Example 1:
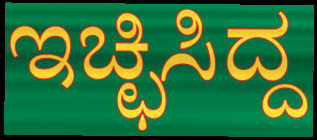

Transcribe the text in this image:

ಇಚ್ಛಿಸಿದ್ದ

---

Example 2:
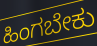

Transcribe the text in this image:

ಹಿಂಗಬೇಕು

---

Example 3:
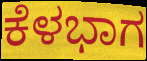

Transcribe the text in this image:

ಕೆಳಭಾಗ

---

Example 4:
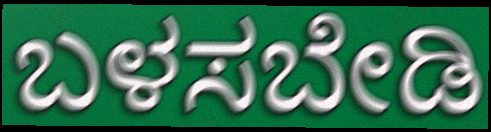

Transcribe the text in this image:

ಬಳಸಬೇಡಿ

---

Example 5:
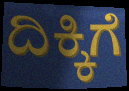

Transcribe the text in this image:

ದಿಕ್ಕಿಗೆ